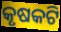
କୃଷକଟି